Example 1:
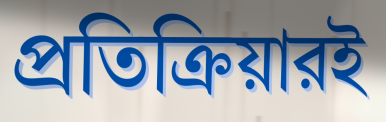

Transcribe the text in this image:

প্রতিক্রিয়ারই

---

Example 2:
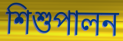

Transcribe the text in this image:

শিশুপালন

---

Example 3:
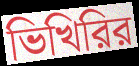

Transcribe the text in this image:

ভিখিরির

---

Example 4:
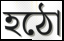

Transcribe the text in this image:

হঠো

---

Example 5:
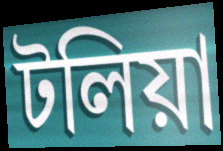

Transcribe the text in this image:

টলিয়া